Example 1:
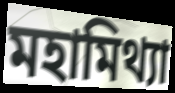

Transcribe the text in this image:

মহামিথ্যা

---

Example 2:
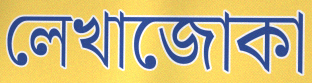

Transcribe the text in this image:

লেখাজোকা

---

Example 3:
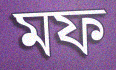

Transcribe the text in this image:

মফ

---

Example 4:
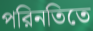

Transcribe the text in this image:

পরিনতিতে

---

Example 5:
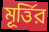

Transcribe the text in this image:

মূর্ত্তির